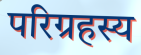
परिग्रहस्य